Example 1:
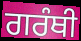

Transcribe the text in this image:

ਗਰੰਥੀ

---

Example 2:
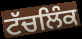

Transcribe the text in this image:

ਟੱਚਲਿੰਕ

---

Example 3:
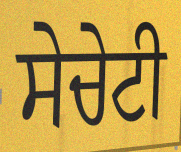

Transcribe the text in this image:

ਸੇਚੇਟੀ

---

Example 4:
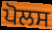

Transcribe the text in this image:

ਪੋਲਸ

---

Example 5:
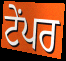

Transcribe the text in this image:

ਟੇਂਪਰ